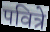
पवित्रे